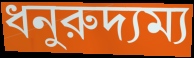
ধনুরুদ্যম্য